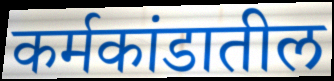
कर्मकांडातील